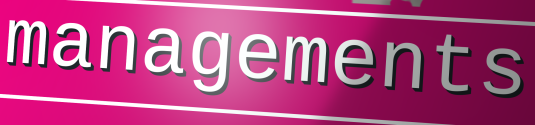
managements